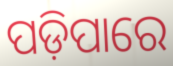
ପଡ଼ିପାରେ